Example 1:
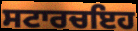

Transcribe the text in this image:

ਸਟਾਰਚਇਹ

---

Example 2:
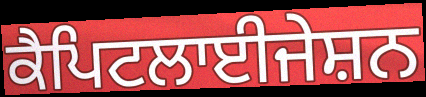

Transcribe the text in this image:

ਕੈਪਿਟਲਾਈਜੇਸ਼ਨ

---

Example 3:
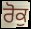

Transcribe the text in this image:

ਰੋਕੁ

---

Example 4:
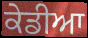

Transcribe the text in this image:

ਕੇਡੀਆ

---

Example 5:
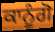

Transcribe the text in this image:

ਕਾਨੂੰਗੋ